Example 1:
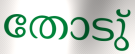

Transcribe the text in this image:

തോടു്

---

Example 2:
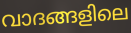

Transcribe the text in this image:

വാദങ്ങളിലെ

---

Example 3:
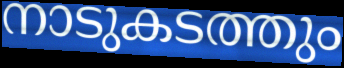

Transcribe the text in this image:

നാടുകടത്തും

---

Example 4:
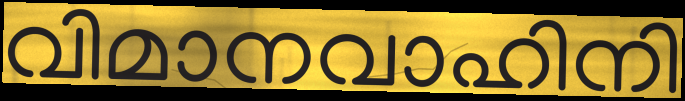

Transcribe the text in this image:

വിമാനവാഹിനി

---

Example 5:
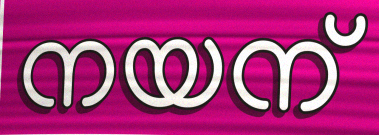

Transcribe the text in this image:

നയന്